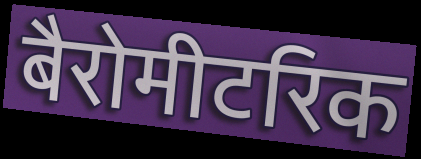
बैरोमीटरिक